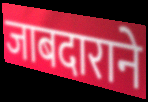
जाबदाराने